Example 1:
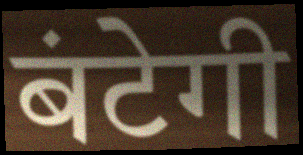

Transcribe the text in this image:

बंटेगी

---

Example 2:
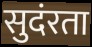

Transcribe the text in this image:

सुदंरता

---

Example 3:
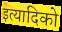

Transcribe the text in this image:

इत्यादिको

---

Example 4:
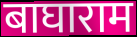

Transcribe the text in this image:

बाघाराम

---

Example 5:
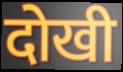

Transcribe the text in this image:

दोखी